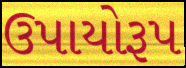
ઉપાયોરૂપ